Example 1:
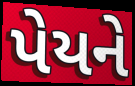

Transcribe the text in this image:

પેયને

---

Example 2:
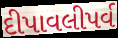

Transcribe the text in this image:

દીપાવલીપર્વ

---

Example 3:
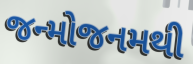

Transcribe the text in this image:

જન્મોજનમથી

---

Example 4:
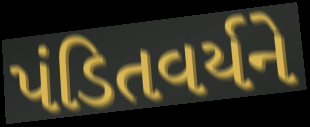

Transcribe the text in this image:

પંડિતવર્યને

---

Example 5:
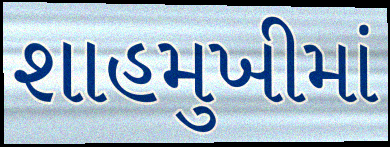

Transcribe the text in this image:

શાહમુખીમાં